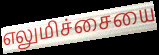
எலுமிச்சையை